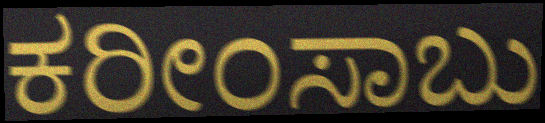
ಕರೀಂಸಾಬು